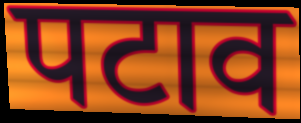
पटाव